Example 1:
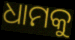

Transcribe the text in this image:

ଧାମକୁ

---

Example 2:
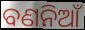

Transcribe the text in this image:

ବଣନିଆଁ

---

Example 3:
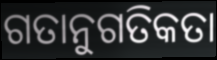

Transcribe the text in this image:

ଗତାନୁଗତିକତା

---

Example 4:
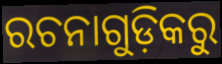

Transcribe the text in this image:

ରଚନାଗୁଡ଼ିକରୁ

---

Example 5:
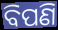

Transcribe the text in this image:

ବିପଣି